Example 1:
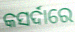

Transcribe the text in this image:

କସର୍ଦାରେ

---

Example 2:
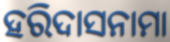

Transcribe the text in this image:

ହରିଦାସନାମା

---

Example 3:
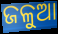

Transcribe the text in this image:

ଜଳୁଆ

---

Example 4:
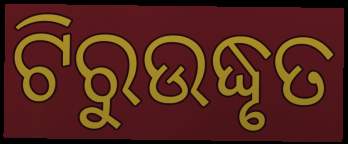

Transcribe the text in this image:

ଟିରୁଉଦ୍ଧୃତ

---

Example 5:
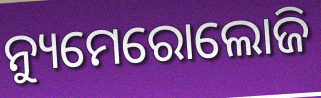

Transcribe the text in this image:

ନ୍ୟୁମେରୋଲୋଜି